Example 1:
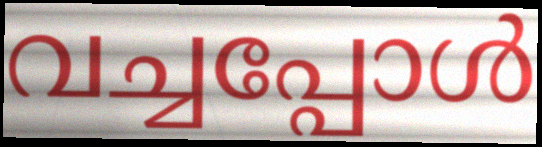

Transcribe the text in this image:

വച്ചപ്പോൾ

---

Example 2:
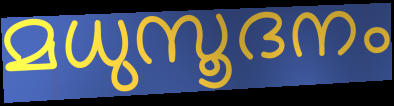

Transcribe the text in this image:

മധുസൂദനം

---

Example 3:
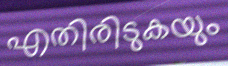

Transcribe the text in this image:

എതിരിടുകയും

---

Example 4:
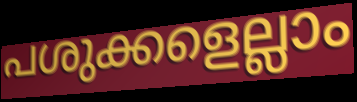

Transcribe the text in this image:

പശുക്കളെല്ലാം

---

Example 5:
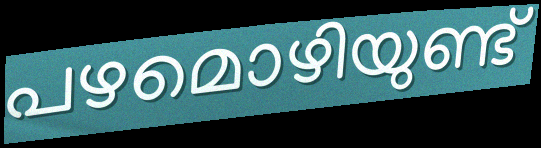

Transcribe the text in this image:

പഴമൊഴിയുണ്ട്